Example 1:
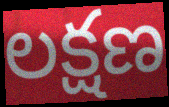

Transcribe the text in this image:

లక్షణ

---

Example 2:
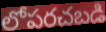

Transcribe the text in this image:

లోపరచబడి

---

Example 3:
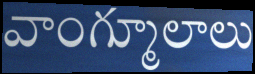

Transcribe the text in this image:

వాంగ్మూలాలు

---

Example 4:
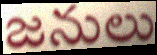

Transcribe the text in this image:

జనులు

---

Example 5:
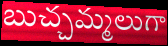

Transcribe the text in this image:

బుచ్చమ్మలుగా